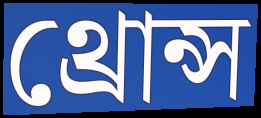
থ্রোন্স